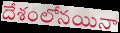
దేశంలోనయినా